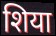
शिया